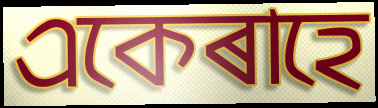
একেৰাহে